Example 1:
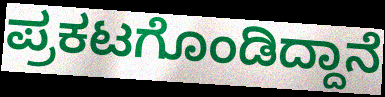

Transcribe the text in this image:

ಪ್ರಕಟಗೊಂಡಿದ್ದಾನೆ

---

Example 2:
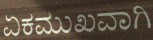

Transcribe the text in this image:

ಏಕಮುಖವಾಗಿ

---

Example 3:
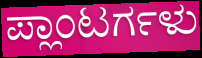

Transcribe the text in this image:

ಪ್ಲಾಂಟರ್ಗಳು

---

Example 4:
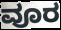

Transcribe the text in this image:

ವೂರ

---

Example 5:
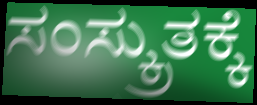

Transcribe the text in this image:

ಸಂಸ್ಕ್ರುತಕ್ಕೆ